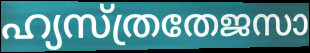
ഹ്യസ്ത്രതേജസാ